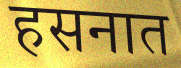
हसनात